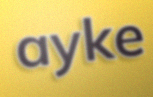
ayke